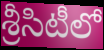
శ్రీసిటీలో